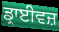
ਡ੍ਰਾਈਵਜ਼